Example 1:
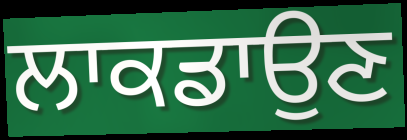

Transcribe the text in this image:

ਲਾਕਡਾਉਣ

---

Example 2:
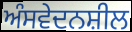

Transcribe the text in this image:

ਅੰਸਵੇਦਨਸ਼ੀਲ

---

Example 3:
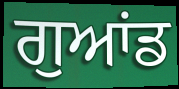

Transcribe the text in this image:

ਗੁਆਂਡ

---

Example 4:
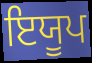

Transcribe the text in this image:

ਇਯੂਪ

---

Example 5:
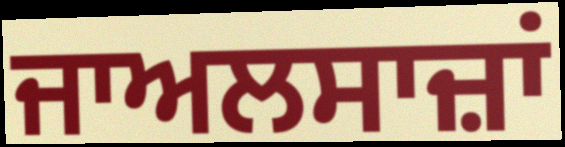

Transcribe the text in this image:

ਜਾਅਲਸਾਜ਼ਾਂ